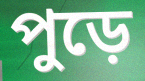
পুড়ে